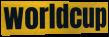
worldcup